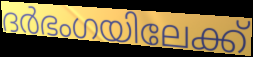
ദർഭംഗയിലേക്ക്